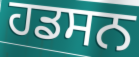
ਹਡਸਨ